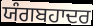
ਯੰਗਬਹਾਦਰ